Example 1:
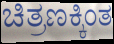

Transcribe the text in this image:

ಚಿತ್ರಣಕ್ಕಿಂತ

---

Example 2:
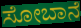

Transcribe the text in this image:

ಸೋಬಾನೆ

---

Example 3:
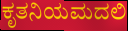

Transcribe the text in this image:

ಕೃತನಿಯಮದಲಿ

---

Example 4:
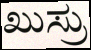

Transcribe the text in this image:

ಖುಸ್ರು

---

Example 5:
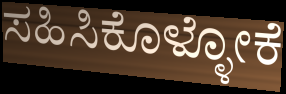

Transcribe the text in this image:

ಸಹಿಸಿಕೊಳ್ಳೋಕೆ